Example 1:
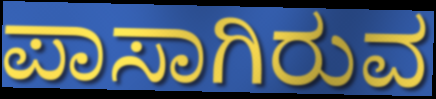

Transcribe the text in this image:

ಪಾಸಾಗಿರುವ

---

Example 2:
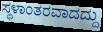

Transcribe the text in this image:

ಸ್ಥಳಾಂತರವಾದದ್ದು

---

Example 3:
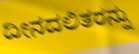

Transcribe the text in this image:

ದೀನದಲಿತರನ್ನು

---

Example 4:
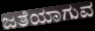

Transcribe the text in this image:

ಜತೆಯಾಗುವ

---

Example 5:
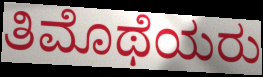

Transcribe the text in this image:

ತಿಮೊಥೆಯರು